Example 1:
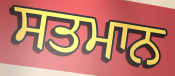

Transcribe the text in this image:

ਸਤਮਾਨ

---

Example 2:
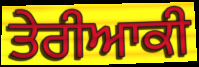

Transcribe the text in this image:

ਤੇਰੀਆਕੀ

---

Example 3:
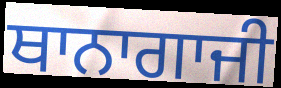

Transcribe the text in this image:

ਥਾਨਾਗਾਜੀ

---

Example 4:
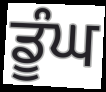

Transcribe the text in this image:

ਡੂੰਘ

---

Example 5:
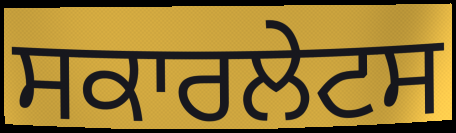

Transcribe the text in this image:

ਸਕਾਰਲੇਟਸ